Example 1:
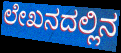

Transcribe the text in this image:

ಲೇಖನದಲ್ಲಿನ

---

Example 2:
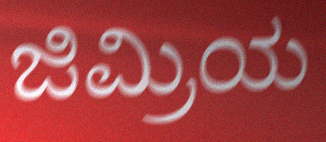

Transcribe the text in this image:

ಜಿಮ್ರಿಯ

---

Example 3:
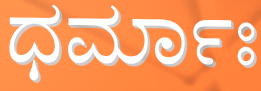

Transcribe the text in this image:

ಧರ್ಮಾಃ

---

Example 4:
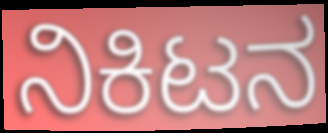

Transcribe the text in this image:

ನಿಕಿಟನ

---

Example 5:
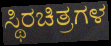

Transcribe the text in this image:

ಸ್ಥಿರಚಿತ್ರಗಳ